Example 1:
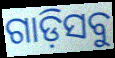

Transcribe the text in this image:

ଗାଡ଼ିସବୁ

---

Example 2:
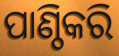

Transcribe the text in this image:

ପାଣ୍ଠିକରି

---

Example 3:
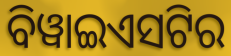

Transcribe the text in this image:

ବିୱାଇଏସଟିର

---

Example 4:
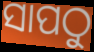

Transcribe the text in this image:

ସାପଠୁ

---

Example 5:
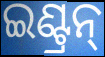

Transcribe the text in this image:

ଇଣ୍ଟ୍ରନ୍